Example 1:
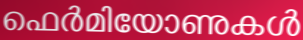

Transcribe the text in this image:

ഫെർമിയോണുകൾ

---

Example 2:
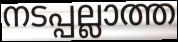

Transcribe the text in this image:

നടപ്പല്ലാത്ത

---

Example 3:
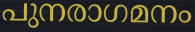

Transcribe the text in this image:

പുനരാഗമനം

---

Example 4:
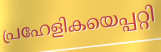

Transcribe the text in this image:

പ്രഹേളികയെപ്പറ്റി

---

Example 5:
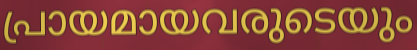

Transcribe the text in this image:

പ്രായമായവരുടെയും